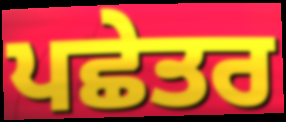
ਪਛੇਤਰ